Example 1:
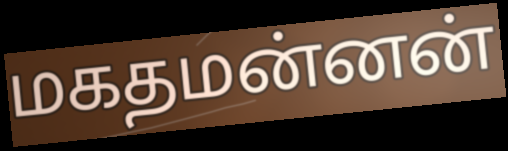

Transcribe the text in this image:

மகதமன்னன்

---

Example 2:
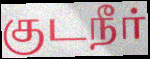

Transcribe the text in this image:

குடநீர்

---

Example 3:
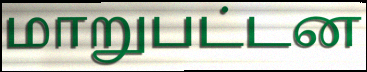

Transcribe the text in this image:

மாறுபட்டன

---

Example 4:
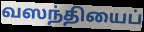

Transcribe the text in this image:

வஸந்தியைப்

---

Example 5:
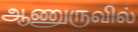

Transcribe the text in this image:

ஆணுருவில்